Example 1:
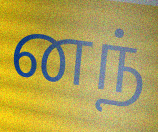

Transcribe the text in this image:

னந்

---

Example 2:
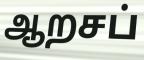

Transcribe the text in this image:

ஆறசப்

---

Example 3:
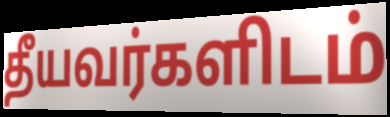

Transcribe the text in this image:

தீயவர்களிடம்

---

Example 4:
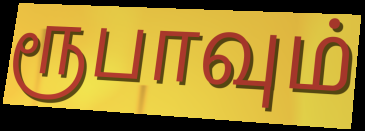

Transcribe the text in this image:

ரூபாவும்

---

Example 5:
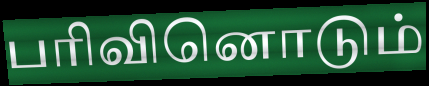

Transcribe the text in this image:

பரிவினொடும்